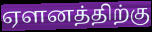
ஏளனத்திற்கு